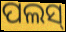
ପଲସ୍